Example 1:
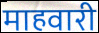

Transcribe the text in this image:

माहवारी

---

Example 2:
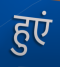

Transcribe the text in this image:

हुएं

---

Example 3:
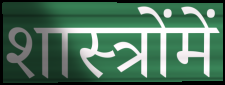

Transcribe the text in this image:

शास्त्रोंमें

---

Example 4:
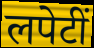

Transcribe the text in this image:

लपेटीं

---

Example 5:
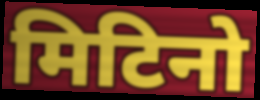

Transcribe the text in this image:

मिटिनो